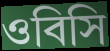
ওবিসি